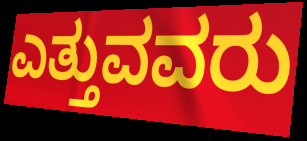
ಎತ್ತುವವರು